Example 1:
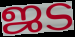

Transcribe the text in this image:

ജട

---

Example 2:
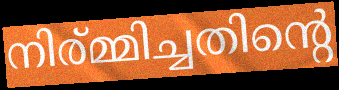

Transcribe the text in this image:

നിര്മ്മിച്ചതിന്റെ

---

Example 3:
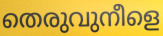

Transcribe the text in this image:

തെരുവുനീളെ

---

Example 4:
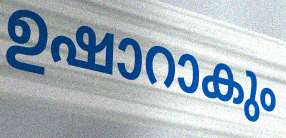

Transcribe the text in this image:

ഉഷാറാകും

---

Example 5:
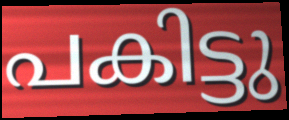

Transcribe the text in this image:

പകിട്ടു